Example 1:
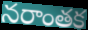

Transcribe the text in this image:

నరాంతక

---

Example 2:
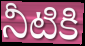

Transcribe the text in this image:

నీటికి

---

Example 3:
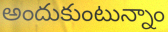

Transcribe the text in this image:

అందుకుంటున్నాం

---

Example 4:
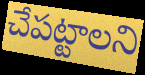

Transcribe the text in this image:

చేపట్టాలని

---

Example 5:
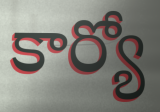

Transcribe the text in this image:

కార్యో